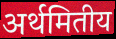
अर्थमितीय